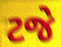
ટજે